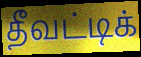
தீவட்டிக்